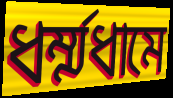
ধর্ম্মধামে